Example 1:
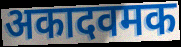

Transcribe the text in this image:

अकादवमक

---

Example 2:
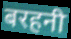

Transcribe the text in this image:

बरहनी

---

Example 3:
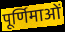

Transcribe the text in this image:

पूर्णिमाओं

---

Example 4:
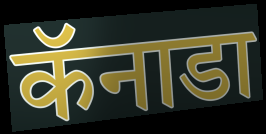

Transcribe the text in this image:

कॅनाडा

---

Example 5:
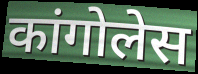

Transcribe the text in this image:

कांगोलेस